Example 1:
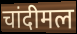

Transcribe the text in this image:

चांदीमल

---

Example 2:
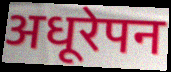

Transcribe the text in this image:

अधूरेपन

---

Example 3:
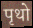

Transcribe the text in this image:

पृथो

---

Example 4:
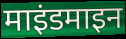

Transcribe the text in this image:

माइंडमाइन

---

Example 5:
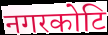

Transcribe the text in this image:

नगरकोटि